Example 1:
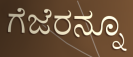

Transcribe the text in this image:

ಗೆಜೆರನ್ನೂ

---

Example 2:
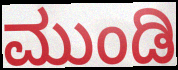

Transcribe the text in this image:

ಮುಂಡಿ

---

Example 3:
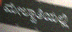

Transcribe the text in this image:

ಮೇಲ್ಜಾತಿಯಲ್ಲಿ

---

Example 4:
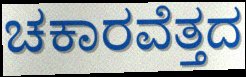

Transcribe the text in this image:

ಚಕಾರವೆತ್ತದ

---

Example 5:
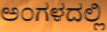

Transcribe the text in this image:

ಅಂಗಳದಲ್ಲಿ